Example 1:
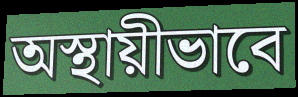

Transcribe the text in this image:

অস্থায়ীভাবে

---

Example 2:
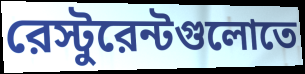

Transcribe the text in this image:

রেস্টুরেন্টগুলোতে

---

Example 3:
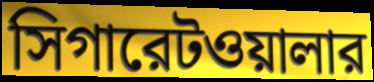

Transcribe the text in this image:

সিগারেটওয়ালার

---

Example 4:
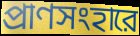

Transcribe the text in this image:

প্রাণসংহারে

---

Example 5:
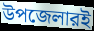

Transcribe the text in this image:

উপজেলারই